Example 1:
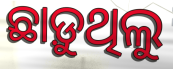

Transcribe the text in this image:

ଛାଡ଼ୁଥିଲୁ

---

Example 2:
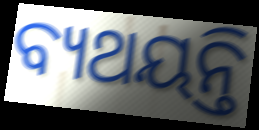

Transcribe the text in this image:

ବ୍ୟଥୟନ୍ତି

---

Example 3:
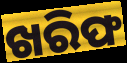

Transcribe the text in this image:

ଖରିଫ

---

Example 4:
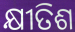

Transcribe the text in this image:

କ୍ଷୀତିଶ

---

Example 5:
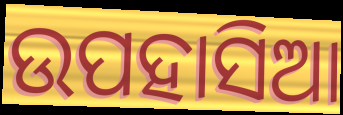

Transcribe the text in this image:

ଉପହାସିଆ